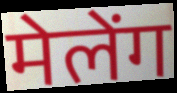
मेलेंग